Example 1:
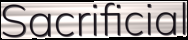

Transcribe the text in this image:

Sacrificial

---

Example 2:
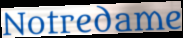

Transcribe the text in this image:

Notredame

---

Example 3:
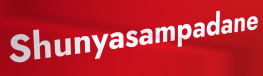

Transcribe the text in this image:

Shunyasampadane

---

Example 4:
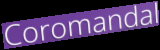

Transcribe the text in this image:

Coromandal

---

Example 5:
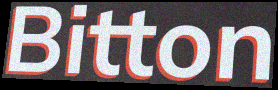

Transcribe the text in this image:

Bitton